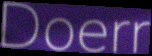
Doerr